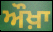
ਔਖ਼ਾ